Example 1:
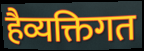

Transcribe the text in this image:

हैव्यक्तिगत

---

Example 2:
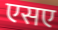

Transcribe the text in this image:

एसए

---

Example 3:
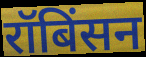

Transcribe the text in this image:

रॉबिंसन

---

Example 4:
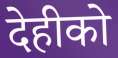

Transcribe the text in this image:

देहीको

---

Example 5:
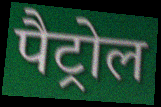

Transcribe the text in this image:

पैट्रोल